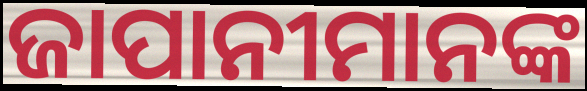
ଜାପାନୀମାନଙ୍କ